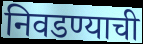
निवडण्याची